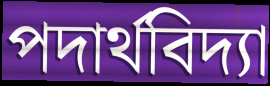
পদাৰ্থবিদ্যা